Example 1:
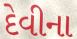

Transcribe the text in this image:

દેવીના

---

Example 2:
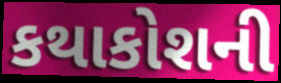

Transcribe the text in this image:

કથાકોશની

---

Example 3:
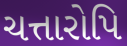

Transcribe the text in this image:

ચત્તારોપિ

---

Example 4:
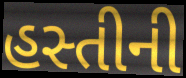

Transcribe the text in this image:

હસ્તીની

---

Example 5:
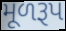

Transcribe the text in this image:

મૂળરૂપ